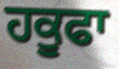
ਹਕੂਫਾ